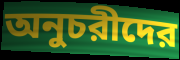
অনুচরীদের